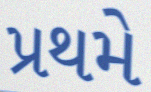
પ્રથમે